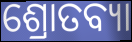
ଶ୍ରୋତବ୍ୟା